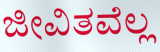
ಜೀವಿತವೆಲ್ಲ